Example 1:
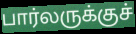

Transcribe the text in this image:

பார்லருக்குச்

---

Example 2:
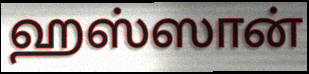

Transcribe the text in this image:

ஹஸ்ஸான்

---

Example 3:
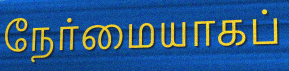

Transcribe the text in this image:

நேர்மையாகப்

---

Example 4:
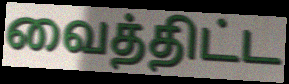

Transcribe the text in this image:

வைத்திட்ட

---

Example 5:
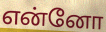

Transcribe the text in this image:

என்னோ